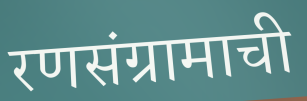
रणसंग्रामाची